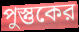
পুস্তুকের